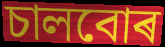
চালবোৰ